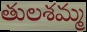
తులశమ్మ